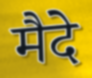
मैदे